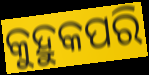
କୁହୁକପରି